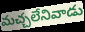
మచ్చలేనివాడు